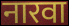
नारवा